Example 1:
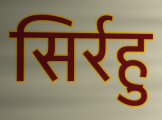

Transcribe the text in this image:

सिर्रहु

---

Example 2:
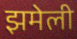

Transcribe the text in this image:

झमेली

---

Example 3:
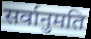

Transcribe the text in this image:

सर्वानुमति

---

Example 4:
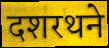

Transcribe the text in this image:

दशरथने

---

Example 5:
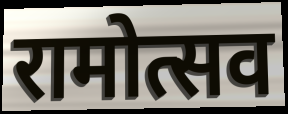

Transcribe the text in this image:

रामोत्सव